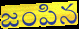
జంపిన